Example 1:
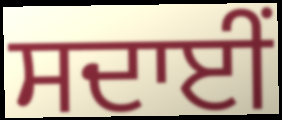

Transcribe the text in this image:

ਸਦਾਈਂ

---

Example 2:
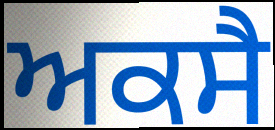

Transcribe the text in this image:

ਅਕਸੈ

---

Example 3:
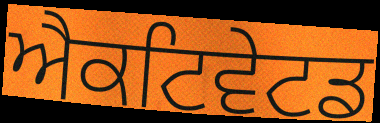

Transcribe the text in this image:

ਐਕਟਿਵੇਟਡ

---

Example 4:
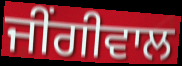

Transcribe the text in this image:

ਜੀਂਗੀਵਾਲ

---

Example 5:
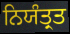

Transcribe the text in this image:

ਨਿਯੰਤ੍ਰਤ